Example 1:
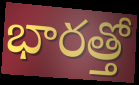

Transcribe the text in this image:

భారత్తో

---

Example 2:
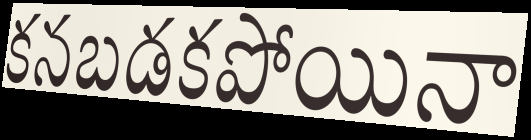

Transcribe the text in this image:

కనబడకపోయినా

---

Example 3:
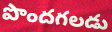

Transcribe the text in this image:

పొందగలడు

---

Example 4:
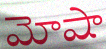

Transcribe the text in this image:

మోషా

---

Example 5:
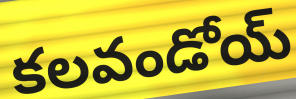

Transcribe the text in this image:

కలవండోయ్